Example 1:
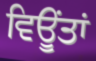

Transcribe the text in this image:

ਵਿਊਂਤਾਂ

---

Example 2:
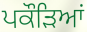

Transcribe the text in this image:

ਪਕੌਡ਼ਿਆਂ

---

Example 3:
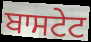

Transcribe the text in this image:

ਬਾਸਟੇਟ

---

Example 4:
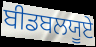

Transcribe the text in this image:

ਬੀਡਬਲਯੂਏ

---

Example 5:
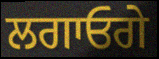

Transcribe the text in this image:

ਲਗਾਓਗੇ